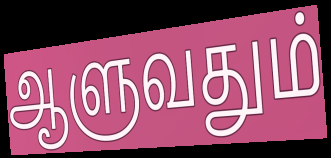
ஆளுவதும்